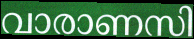
വാരാണസി